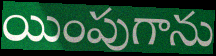
యింపుగాను